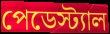
পেডেস্ট্যাল